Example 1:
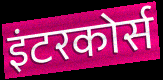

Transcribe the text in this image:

इंटरकोर्स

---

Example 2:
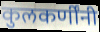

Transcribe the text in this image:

कुलकर्णींनी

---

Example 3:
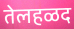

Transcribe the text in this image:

तेलहळद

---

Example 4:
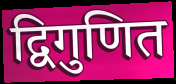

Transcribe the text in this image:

द्विगुणित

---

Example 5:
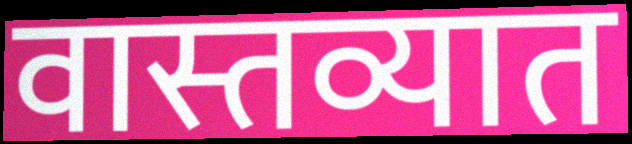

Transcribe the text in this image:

वास्तव्यात